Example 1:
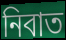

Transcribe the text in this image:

নিবাত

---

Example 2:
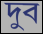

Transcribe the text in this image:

দুব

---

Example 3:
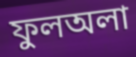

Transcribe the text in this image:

ফুলঅলা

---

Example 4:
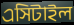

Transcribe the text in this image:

এসিটাইল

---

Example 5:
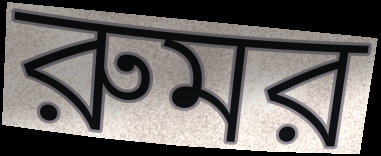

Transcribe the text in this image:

রুমর